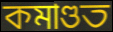
কমাণ্ডত